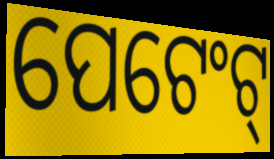
ପେଟେଂଟ୍